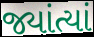
જ્યાંત્યાં